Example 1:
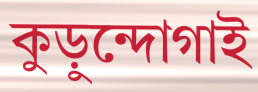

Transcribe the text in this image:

কুড়ুন্দোগাই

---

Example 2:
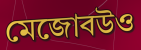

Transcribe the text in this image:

মেজোবউও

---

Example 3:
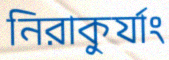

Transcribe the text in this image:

নিরাকুর্যাং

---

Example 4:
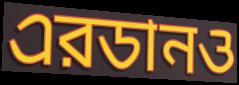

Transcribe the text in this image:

এরডানও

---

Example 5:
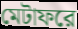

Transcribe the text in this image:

মেটাফরে